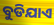
ବୁଡିଯାଏ